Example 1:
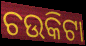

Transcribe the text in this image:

ଚଉକିଟା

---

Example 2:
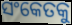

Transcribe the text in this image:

ସଂକେତକୁ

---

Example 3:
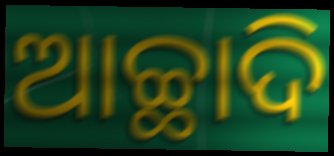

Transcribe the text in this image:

ଆଚ୍ଛାଦି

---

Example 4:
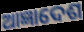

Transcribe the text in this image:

ଆଜ୍ଞାଦେଶ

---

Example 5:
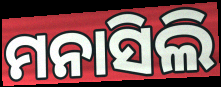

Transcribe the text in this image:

ମନାସିଲି